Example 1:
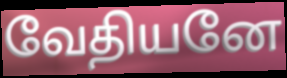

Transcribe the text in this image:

வேதியனே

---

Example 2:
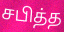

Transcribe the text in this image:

சபித்த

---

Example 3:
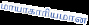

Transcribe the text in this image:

மாயாகாரியமான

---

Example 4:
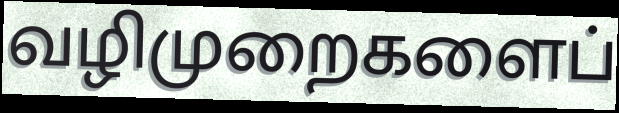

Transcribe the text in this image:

வழிமுறைகளைப்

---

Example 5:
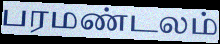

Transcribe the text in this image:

பரமண்டலம்